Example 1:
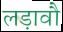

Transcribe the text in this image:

लड़ावौ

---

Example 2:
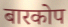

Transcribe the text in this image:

बारकोप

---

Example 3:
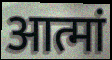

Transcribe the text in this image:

आत्मां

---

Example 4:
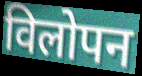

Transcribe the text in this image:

विलोपन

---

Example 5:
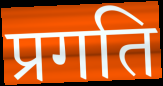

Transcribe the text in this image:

प्रगति